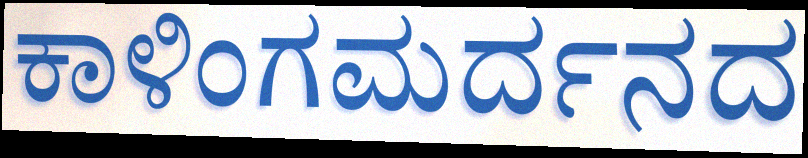
ಕಾಳಿಂಗಮರ್ದನದ